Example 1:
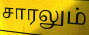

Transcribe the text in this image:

சாரலும்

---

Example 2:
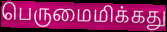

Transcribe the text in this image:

பெருமைமிக்கது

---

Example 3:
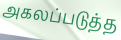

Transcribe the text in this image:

அகலப்படுத்த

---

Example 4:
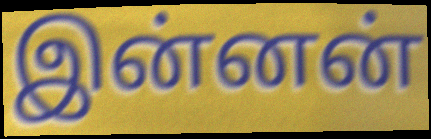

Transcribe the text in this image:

இன்னன்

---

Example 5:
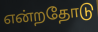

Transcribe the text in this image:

என்றதோடு